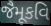
જૈમૂકવિ